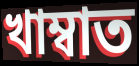
খাম্বাত